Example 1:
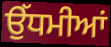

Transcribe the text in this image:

ਉੱਧਮੀਆਂ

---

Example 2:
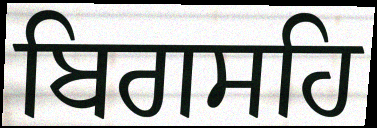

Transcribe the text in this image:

ਬਿਗਸਹਿ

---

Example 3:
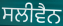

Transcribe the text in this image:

ਸਲੀਵੈਨ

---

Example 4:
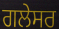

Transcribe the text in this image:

ਗਲੇਸਰ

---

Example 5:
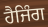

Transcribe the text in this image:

ਹੈਜਿੰਗ